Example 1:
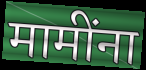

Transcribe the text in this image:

मामींना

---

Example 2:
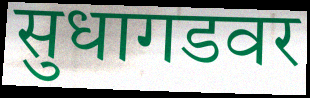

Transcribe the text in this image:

सुधागडवर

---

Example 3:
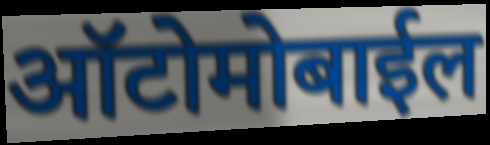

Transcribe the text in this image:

ऑटोमोबाईल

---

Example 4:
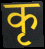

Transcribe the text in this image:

कृ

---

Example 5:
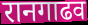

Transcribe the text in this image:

रानगाढव